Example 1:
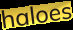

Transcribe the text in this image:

haloes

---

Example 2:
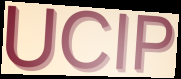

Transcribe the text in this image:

UCIP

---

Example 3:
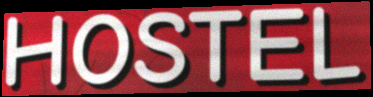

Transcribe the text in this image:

HOSTEL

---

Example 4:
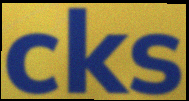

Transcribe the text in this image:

cks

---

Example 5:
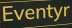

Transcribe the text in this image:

Eventyr